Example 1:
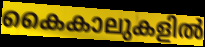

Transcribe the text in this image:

കൈകാലുകളിൽ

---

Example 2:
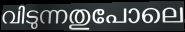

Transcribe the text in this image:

വിടുന്നതുപോലെ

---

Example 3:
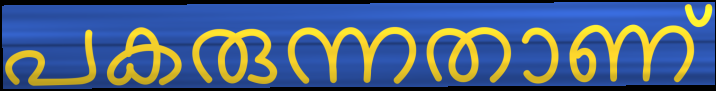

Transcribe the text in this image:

പകരുന്നതാണ്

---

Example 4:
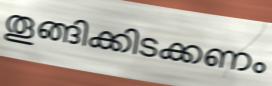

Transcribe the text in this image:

തൂങ്ങിക്കിടക്കണം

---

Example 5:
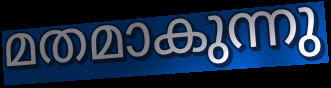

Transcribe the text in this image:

മതമാകുന്നു